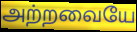
அற்றவையே